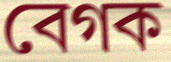
বেগক